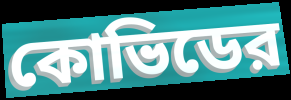
কোভিডের